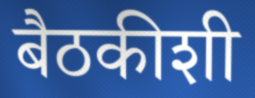
बैठकीशी